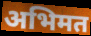
अभिमत